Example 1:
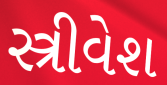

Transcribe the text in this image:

સ્ત્રીવેશ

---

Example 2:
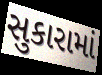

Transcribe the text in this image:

સુકારામાં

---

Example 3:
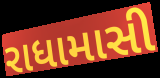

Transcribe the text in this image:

રાધામાસી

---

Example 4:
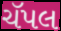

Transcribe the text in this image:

ચૅપલ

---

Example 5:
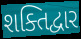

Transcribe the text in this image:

શક્તિદ્વાર